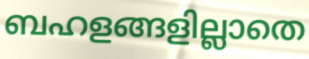
ബഹളങ്ങളില്ലാതെ